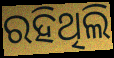
ରହିଥିଲି